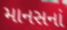
માનસનાં